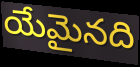
యేమైనది